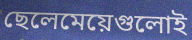
ছেলেমেয়েগুলোই